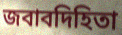
জবাবদিহিতা